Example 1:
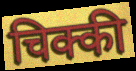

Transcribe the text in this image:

चिक्की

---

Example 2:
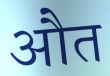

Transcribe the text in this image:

औत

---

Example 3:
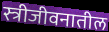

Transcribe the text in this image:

स्त्रीजीवनातील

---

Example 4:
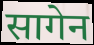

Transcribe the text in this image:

सागेन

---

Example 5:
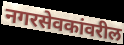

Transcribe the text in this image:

नगरसेवकांवरील